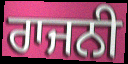
ਰਾਜਨੀ